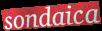
sondaica